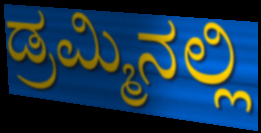
ಡ್ರಮ್ಮಿನಲ್ಲಿ